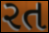
રત